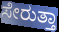
ಸೇರುತ್ತಾ